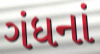
ગંધનાં